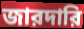
জারদারি